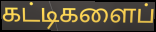
கட்டிகளைப்